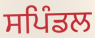
ਸਪਿੰਡਲ